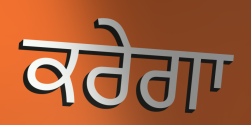
ਕਰੇਗਾ